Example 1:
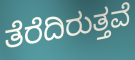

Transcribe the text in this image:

ತೆರೆದಿರುತ್ತವೆ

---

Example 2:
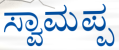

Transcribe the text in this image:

ಸ್ವಾಮಪ್ಪ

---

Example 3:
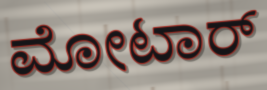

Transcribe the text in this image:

ಮೋಟಾರ್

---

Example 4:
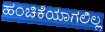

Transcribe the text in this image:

ಹಂಚಿಕೆಯಾಗಲಿಲ್ಲ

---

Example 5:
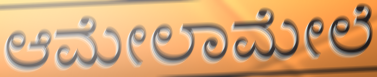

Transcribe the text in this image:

ಆಮೇಲಾಮೇಲೆ